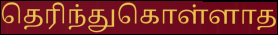
தெரிந்துகொள்ளாத